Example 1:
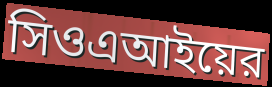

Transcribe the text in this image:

সিওএআইয়ের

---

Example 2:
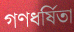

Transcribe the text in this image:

গণধর্ষিতা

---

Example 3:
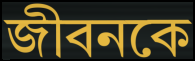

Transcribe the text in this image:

জীবনকে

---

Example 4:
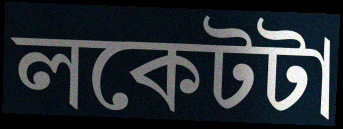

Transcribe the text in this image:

লকেটটা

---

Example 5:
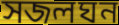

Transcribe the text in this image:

সজলঘন